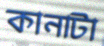
কানাটা